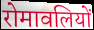
रोमावलियों